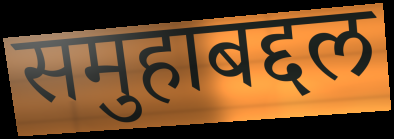
समुहाबद्दल